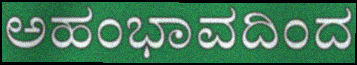
ಅಹಂಭಾವದಿಂದ